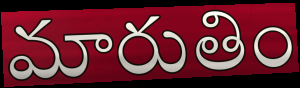
మారుతిం